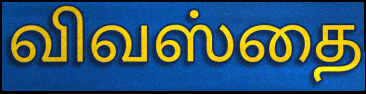
விவஸ்தை